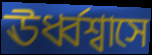
ঊর্ধ্বশ্বাসে